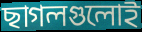
ছাগলগুলোই